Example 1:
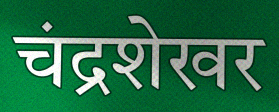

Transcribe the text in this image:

चंद्रशेखर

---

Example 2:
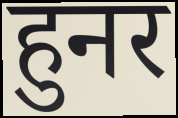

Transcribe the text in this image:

हुनर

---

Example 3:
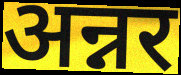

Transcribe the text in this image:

अन्नर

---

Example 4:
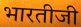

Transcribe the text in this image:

भारतीजी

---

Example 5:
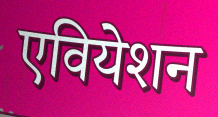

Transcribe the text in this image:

एवियेशन